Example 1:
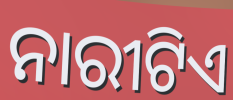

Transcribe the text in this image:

ନାରୀଟିଏ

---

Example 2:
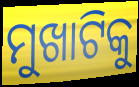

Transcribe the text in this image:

ମୁଖାଟିକୁ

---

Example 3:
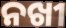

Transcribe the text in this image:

ନଖୀ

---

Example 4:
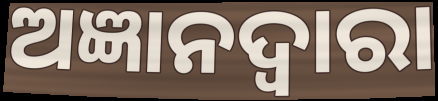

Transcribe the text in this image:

ଅଜ୍ଞାନଦ୍ଵାରା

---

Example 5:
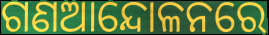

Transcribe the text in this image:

ଗଣଆନ୍ଦୋଳନରେ